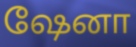
ஷேனா